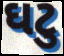
ઘટુ